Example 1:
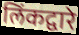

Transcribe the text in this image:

लिंकद्वारे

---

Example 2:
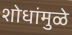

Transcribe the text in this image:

शोधांमुळे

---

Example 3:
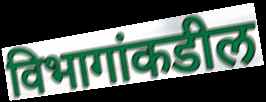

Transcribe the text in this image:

विभागांकडील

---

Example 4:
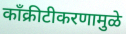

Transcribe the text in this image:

काँक्रीटीकरणामुळे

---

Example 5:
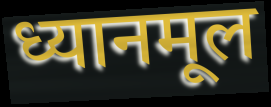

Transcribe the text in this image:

ध्यानमूल